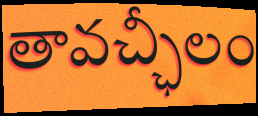
తావచ్ఛీలం